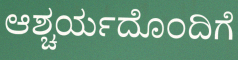
ಆಶ್ಚರ್ಯದೊಂದಿಗೆ